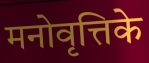
मनोवृत्तिके